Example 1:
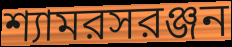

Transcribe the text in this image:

শ্যামরসরঞ্জন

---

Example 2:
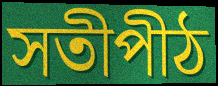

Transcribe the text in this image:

সতীপীঠ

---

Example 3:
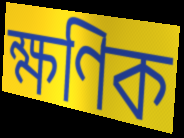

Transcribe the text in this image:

ক্ষণিক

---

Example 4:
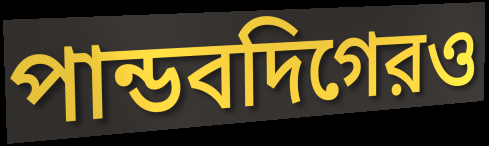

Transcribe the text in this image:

পান্ডবদিগেরও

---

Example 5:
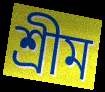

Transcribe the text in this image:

শ্রীম